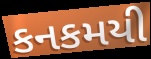
કનકમયી